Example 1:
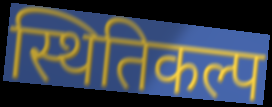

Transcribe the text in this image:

स्थितिकल्प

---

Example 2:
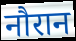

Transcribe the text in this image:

नौरान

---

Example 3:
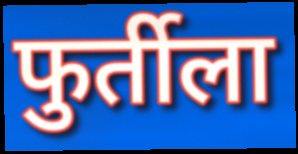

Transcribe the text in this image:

फुर्तीला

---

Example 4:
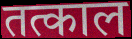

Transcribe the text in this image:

तत्‍काल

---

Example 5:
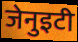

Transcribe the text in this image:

जेनुइटी